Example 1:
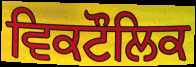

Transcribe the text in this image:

ਵਿਕਟੌਲਿਕ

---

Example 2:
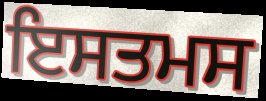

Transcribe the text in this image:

ਇਸਤਮਸ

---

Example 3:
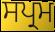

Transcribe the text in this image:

ਸਪ੍ਰਮ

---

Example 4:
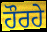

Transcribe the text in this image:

ਹੌਰਹੇ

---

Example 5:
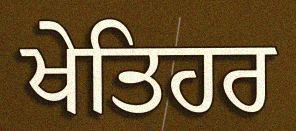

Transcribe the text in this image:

ਖੇਤਿਹਰ